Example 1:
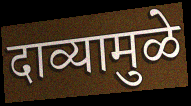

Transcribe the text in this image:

दाव्यामुळे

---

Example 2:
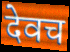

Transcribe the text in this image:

देवच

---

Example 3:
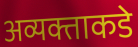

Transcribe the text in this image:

अव्यक्ताकडे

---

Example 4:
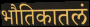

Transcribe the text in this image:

भौतिकातलं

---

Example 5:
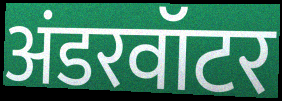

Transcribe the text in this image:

अंडरवॉटर